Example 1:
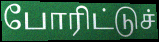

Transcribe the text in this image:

போரிட்டுச்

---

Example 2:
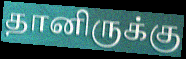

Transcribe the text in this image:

தானிருக்கு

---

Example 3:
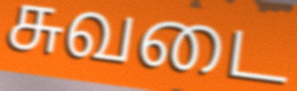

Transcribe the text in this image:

சுவடை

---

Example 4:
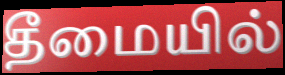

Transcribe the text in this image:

தீமையில்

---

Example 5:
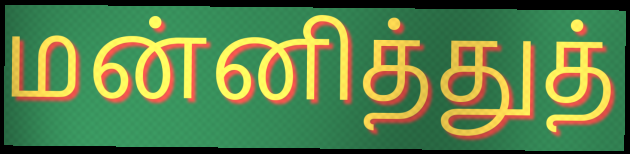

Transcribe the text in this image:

மன்னித்துத்